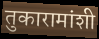
तुकारामांशी